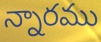
న్నారము